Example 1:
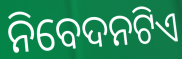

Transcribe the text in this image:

ନିବେଦନଟିଏ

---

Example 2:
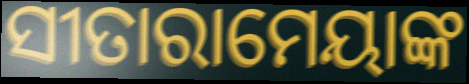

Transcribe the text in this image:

ସୀତାରାମେୟାଙ୍କ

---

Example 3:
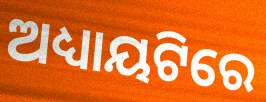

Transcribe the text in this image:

ଅଧ୍ୟାୟଟିରେ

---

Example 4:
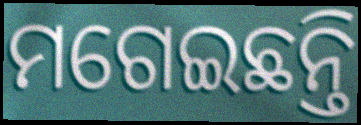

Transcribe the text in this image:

ମଗେଇଛନ୍ତି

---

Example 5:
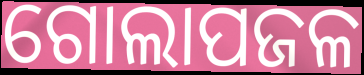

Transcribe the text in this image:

ଗୋଲାପଜଳ